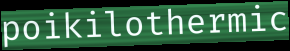
poikilothermic